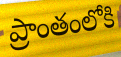
ప్రాంతంలోకి